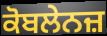
ਕੋਬਲੇਨਜ਼